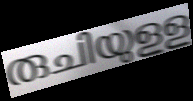
രുചിയുളള